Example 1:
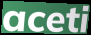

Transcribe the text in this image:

aceti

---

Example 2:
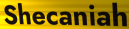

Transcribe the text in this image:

Shecaniah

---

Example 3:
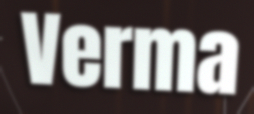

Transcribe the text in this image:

Verma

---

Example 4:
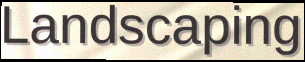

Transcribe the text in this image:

Landscaping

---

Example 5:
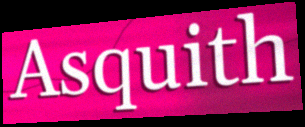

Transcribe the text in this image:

Asquith